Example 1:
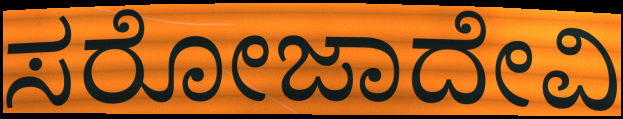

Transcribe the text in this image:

ಸರೋಜಾದೇವಿ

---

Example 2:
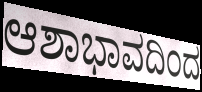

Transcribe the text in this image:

ಆಶಾಭಾವದಿಂದ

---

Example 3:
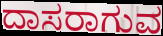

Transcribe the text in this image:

ದಾಸರಾಗುವ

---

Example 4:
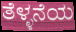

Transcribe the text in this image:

ತೆಳ್ಳನೆಯ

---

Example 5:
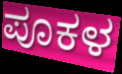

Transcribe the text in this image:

ಪೂಕಳ